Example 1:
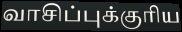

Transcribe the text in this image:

வாசிப்புக்குரிய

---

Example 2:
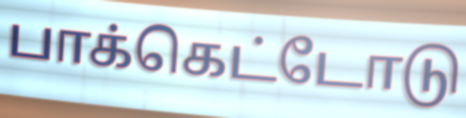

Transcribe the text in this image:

பாக்கெட்டோடு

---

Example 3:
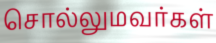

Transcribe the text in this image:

சொல்லுமவர்கள்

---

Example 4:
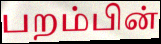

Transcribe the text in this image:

பறம்பின்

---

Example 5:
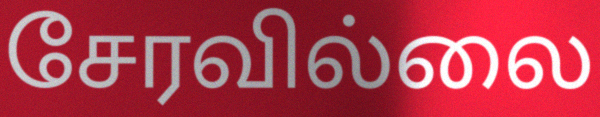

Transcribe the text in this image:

சேரவில்லை